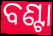
ବଣ୍ଟା